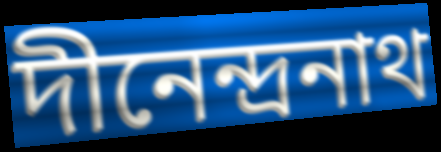
দীনেন্দ্রনাথ